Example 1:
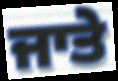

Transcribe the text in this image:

ਜਾਤੇ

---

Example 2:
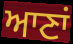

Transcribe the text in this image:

ਆਣਾਂ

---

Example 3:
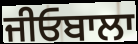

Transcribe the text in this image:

ਜੀਓਬਾਲਾ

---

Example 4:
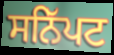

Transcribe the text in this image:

ਸਨਿੱਪਟ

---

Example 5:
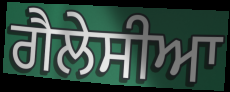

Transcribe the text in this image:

ਗੈਲੇਸੀਆ